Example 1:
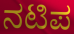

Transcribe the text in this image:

ನಟಿಪ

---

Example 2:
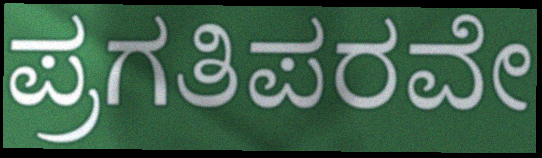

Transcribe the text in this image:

ಪ್ರಗತಿಪರವೇ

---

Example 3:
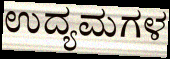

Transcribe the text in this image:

ಉದ್ಯಮಗಳ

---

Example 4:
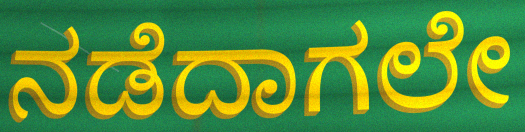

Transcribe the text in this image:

ನಡೆದಾಗಲೇ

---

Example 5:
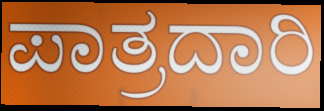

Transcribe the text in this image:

ಪಾತ್ರದಾರಿ